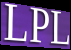
LPL